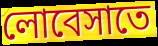
লোবেসাতে